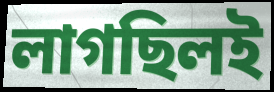
লাগছিলই